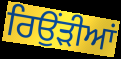
ਰਿਉਂੜੀਆਂ